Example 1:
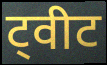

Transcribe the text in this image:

ट्‍वीट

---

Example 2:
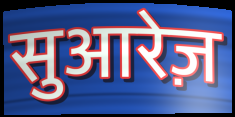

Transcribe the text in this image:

सुआरेज़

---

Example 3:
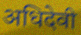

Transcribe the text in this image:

अधिदेवी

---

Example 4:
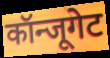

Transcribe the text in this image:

कॉन्जूगेट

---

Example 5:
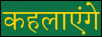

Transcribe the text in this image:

कहलाएंगे